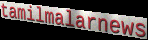
tamilmalarnews